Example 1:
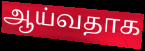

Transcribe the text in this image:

ஆய்வதாக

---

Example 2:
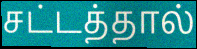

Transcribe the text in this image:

சட்டத்தால்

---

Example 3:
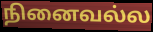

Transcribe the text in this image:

நினைவல்ல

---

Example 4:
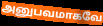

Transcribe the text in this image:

அனுபவமாகவே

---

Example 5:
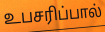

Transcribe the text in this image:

உபசரிப்பால்